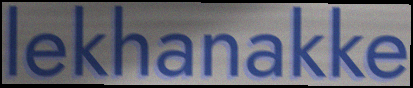
lekhanakke